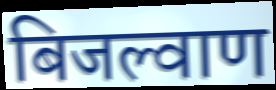
बिजल्वाण